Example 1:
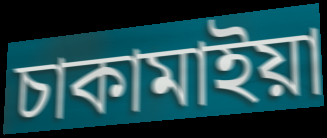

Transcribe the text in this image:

চাকামাইয়া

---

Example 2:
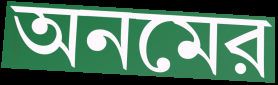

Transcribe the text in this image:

অনমের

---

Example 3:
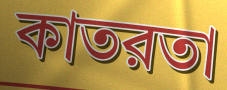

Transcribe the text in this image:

কাতরতা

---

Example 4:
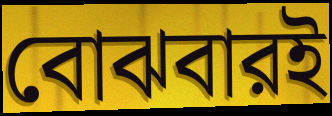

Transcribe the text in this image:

বোঝবারই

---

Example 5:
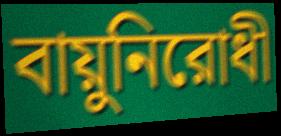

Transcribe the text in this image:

বায়ুনিরোধী